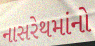
નાસરેથમાંનો